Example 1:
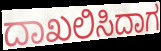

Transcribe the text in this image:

ದಾಖಲಿಸಿದಾಗ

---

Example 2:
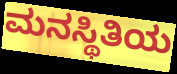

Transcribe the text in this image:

ಮನಸ್ಥಿತಿಯ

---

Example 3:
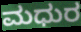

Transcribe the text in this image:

ಮಧುರ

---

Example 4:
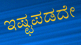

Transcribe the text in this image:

ಇಷ್ಟಪಡದೇ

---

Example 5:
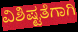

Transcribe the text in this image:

ವಿಶಿಷ್ಟತೆಗಾಗಿ